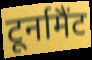
टूर्नामैंट